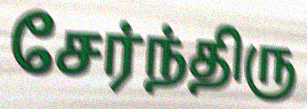
சேர்ந்திரு